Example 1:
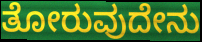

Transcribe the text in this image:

ತೋರುವುದೇನು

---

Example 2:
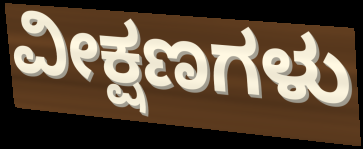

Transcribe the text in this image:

ವೀಕ್ಷಣಗಳು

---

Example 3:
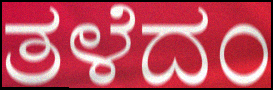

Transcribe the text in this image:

ತಳೆದಂ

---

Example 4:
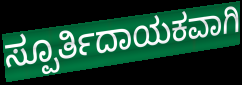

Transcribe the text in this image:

ಸ್ಪೂರ್ತಿದಾಯಕವಾಗಿ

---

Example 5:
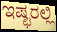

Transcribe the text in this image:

ಇಷ್ಟರಲ್ಲಿ